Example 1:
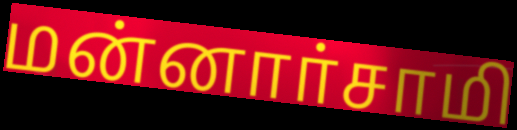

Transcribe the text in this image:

மன்னார்சாமி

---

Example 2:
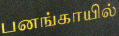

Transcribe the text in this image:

பனங்காயில்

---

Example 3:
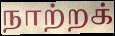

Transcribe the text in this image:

நாற்றக்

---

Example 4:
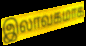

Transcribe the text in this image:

இலாவகமாக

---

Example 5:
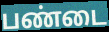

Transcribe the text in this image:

பண்டை